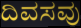
ದಿವಸವು